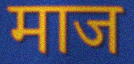
माज